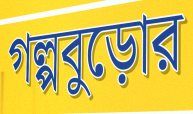
গল্পবুড়োর